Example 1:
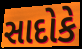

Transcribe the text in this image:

સાદોકે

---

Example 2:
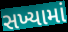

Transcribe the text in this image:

સખ્યામાં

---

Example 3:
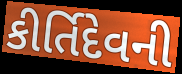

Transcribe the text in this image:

કીર્તિદેવની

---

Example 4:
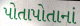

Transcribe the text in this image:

પોતાપોતાનાં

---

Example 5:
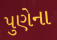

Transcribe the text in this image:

પુણેના